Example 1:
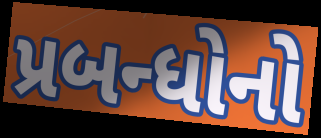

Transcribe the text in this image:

પ્રબન્ધોનો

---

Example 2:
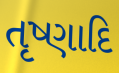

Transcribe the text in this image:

તૃષ્ણાદિ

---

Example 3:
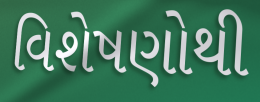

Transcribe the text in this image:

વિશેષણોથી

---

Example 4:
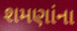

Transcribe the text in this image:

શમણાંના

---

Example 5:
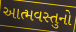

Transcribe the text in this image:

આત્મવસ્તુનો